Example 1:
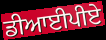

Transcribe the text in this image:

ਡੀਆਈਪੀਏ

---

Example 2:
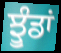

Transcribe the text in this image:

ਝੂੰਡਾਂ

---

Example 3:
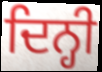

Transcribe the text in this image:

ਦਿਨ੍ਹੀ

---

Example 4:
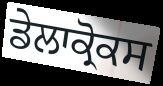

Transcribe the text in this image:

ਡੇਲਾਕ੍ਰੋਕਸ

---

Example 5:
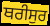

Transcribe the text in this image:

ਥਰੀਸੁਰ